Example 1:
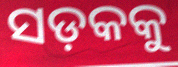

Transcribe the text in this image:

ସଡ଼କକୁ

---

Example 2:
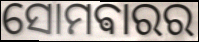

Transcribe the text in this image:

ସୋମଵାରର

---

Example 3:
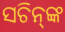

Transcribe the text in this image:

ସଚିନ୍‌ଙ୍କ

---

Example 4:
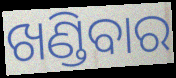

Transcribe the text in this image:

ଖଣ୍ଡିବାର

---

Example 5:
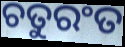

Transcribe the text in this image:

ଚତୁରଂତ